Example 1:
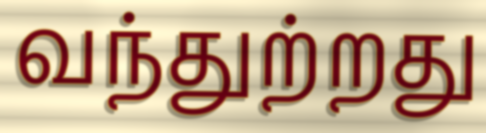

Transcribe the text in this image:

வந்துற்றது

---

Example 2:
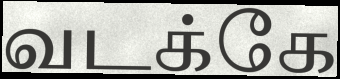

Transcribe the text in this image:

வடக்கே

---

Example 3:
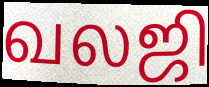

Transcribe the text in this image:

வலஜி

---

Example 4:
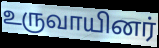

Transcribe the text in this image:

உருவாயினர்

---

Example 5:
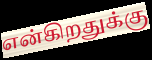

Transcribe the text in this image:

என்கிறதுக்கு